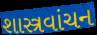
શાસ્ત્રવાંચન